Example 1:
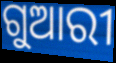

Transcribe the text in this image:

ଗୁଆରୀ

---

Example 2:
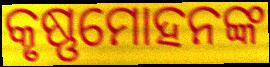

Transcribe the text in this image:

କୃଷ୍ଣମୋହନଙ୍କ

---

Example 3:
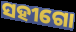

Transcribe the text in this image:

ସହୀଗୋ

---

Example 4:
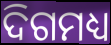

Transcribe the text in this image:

ଦିଗମଧ୍ୟ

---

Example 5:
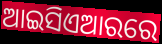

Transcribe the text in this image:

ଆଇସିଏଆରରେ